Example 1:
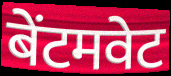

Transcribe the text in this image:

बेंटमवेट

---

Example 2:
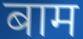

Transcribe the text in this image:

बाम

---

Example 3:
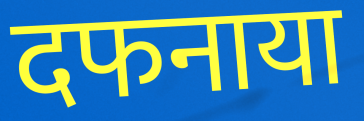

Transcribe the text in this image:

दफनाया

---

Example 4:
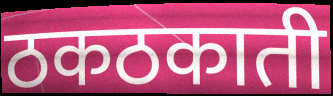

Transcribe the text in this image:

ठकठकाती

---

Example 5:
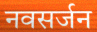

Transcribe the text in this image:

नवसर्जन